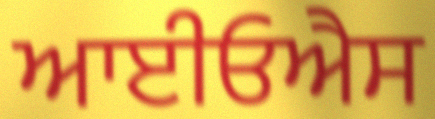
ਆਈਓਐਸ